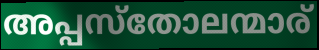
അപ്പസ്തോലന്മാര്